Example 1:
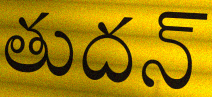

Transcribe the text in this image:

తుదన్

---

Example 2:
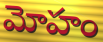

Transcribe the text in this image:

మోహం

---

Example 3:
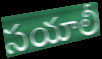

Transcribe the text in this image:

సయాలీ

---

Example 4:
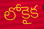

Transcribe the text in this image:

లోకైక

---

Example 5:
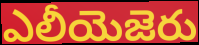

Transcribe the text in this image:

ఎలీయెజెరు